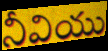
నీవియు